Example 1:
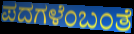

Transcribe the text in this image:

ಪದಗಳೆಂಬಂತೆ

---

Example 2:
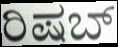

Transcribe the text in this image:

ರಿಷಬ್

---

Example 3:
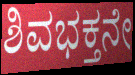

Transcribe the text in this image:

ಶಿವಭಕ್ತನೇ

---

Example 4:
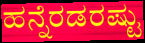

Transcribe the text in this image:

ಹನ್ನೆರಡರಷ್ಟು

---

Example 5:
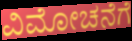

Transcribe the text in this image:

ವಿಮೋಚನೆಗೆ